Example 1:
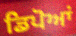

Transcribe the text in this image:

ਡਿਪੋਆਂ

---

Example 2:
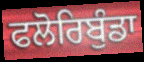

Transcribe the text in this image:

ਫਲੋਰਿਬੁੰਡਾ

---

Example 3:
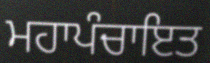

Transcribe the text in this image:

ਮਹਾਪੰਚਾਇਤ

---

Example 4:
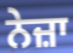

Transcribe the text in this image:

ਨੇਜ਼ਾ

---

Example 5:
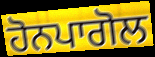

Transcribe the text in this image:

ਹੋਨਪਾਗੋਲ